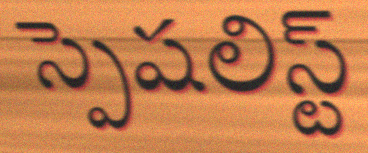
స్పెషలిస్ట్